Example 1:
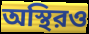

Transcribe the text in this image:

অস্থিরও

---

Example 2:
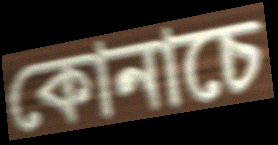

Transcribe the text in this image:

কোনাচে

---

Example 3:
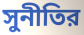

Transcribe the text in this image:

সুনীতির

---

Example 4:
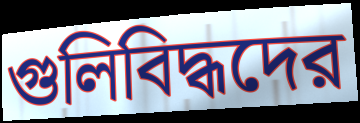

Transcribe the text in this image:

গুলিবিদ্ধদের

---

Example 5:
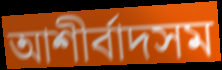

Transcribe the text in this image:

আশীর্বাদসম